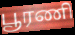
பூரணி